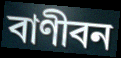
বাণীবন